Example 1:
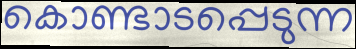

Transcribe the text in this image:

കൊണ്ടാടപ്പെടുന്ന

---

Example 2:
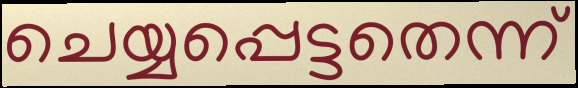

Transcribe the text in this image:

ചെയ്യപ്പെട്ടതെന്ന്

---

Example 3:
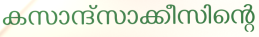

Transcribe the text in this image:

കസാന്ദ്സാക്കീസിന്റെ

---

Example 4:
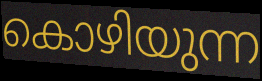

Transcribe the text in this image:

കൊഴിയുന്ന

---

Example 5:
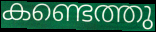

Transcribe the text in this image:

കണ്ടെത്തു